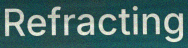
Refracting